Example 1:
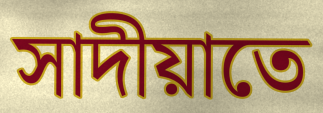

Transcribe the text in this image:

সাদীয়াতে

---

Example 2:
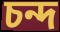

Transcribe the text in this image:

চন্দ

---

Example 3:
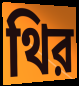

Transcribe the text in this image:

থির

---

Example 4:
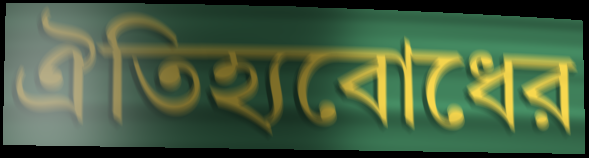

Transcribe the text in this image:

ঐতিহ্যবোধের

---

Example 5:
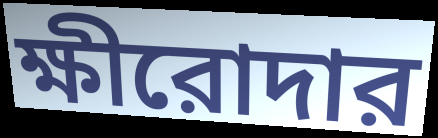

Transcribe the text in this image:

ক্ষীরোদার